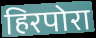
हिरपोरा